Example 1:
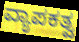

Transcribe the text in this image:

ವ್ಯಾಪಕತ್ವ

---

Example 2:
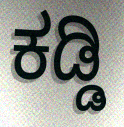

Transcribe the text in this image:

ಕಡ್ಡಿ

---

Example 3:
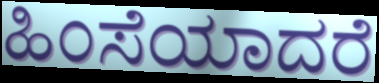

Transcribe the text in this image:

ಹಿಂಸೆಯಾದರೆ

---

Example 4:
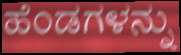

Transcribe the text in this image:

ಹೆಂಡಗಳನ್ನು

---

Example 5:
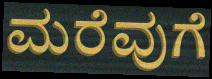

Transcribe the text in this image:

ಮರೆವುಗೆ